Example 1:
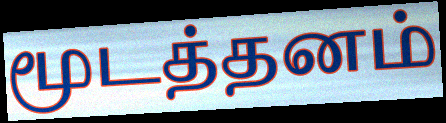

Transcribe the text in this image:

மூடத்தனம்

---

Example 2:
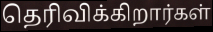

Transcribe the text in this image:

தெரிவிக்கிறார்கள்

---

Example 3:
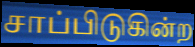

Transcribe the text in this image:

சாப்பிடுகின்ற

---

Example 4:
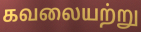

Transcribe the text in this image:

கவலையற்று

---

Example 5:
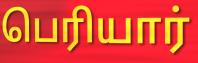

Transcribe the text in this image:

பெரியார்